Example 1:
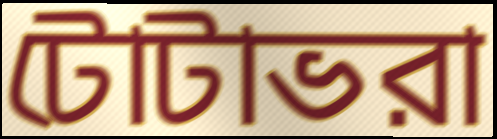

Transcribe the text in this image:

টোটাভরা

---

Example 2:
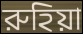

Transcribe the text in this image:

রুহিয়া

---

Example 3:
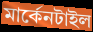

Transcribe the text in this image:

মার্কেনটাইল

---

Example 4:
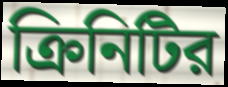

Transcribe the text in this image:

ক্রিনিটির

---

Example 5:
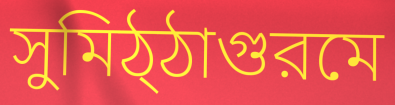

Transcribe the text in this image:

সুমিঠ্ঠাগুরমে